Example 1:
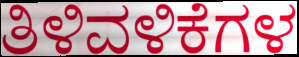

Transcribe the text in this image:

ತಿಳಿವಳಿಕೆಗಳ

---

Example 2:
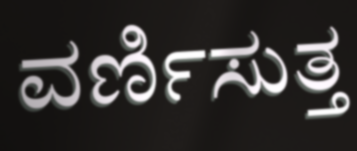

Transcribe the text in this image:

ವರ್ಣಿಸುತ್ತ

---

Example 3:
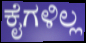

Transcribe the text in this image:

ಕೈಗಳಿಲ್ಲ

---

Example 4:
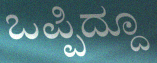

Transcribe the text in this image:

ಒಪ್ಪಿದ್ದೂ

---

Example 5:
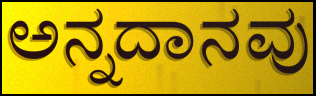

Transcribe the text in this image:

ಅನ್ನದಾನವು